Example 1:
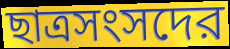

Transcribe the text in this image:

ছাত্রসংসদের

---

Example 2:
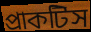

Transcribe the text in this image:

প্রাকটিস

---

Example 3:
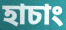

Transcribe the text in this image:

হাচাং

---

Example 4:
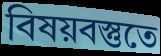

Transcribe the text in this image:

বিষয়বস্তুতে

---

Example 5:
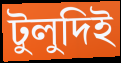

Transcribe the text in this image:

টুলুদিই